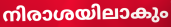
നിരാശയിലാകും